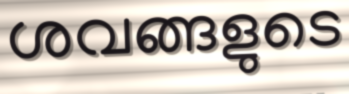
ശവങ്ങളുടെ